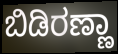
ಬಿಡಿರಣ್ಣಾ